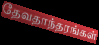
தேவதாந்தரங்கள்